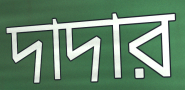
দাদার